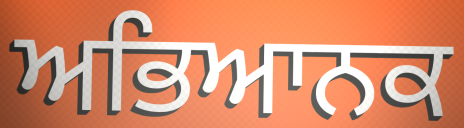
ਅਭਿਆਨਕ